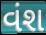
વંશ